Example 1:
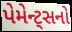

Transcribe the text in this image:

પેમેન્ટ્સનો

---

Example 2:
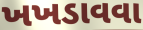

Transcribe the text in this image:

ખખડાવવા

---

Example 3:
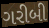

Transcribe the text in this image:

ગરીબી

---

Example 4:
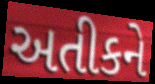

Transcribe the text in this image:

અતીકને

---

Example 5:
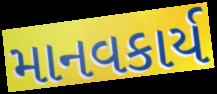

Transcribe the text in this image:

માનવકાર્ય